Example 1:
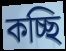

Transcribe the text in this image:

কচ্ছি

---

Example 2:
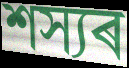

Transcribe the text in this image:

শস্যৰ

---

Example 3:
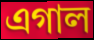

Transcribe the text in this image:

এগাল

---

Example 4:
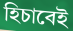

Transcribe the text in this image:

হিচাবেই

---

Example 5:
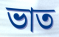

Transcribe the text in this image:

ভাত